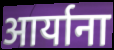
आर्याना